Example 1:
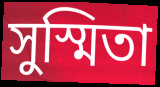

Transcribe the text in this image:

সুস্মিতা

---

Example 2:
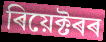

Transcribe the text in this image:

ৰিয়েক্টৰৰ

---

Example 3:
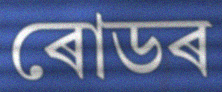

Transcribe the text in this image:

ৰোডৰ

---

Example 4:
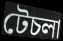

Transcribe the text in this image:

টেচলা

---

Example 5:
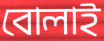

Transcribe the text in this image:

বোলাই